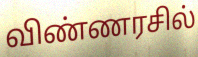
விண்ணரசில்